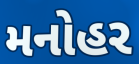
મનોહર